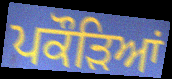
ਪਕੌਡ਼ਿਆਂ